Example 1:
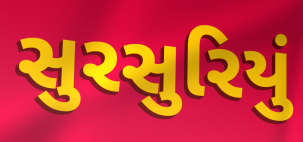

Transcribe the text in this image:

સુરસુરિયું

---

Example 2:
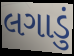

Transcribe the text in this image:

લગાડું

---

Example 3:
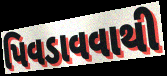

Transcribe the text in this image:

પિવડાવવાથી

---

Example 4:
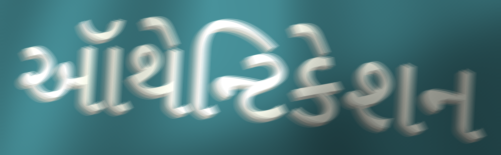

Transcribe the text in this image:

ઑથેન્ટિકેશન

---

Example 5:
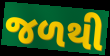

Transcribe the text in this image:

જળથી